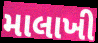
માલાખી